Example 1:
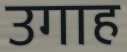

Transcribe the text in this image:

उगाह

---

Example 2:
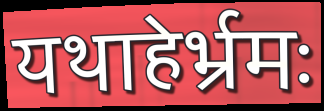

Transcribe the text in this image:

यथाहेर्भ्रमः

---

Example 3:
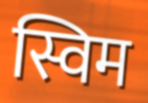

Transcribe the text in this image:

स्विम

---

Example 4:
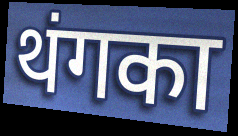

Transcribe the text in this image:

थंगका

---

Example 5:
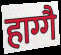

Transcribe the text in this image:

हाग्गै